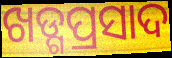
ଖଡ୍ଗପ୍ରସାଦ